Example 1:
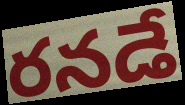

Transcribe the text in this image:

రనడే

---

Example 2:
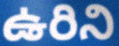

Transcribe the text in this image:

ఉరిని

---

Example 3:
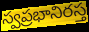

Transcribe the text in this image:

స్వప్రభానిరస్త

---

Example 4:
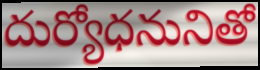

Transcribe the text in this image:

దుర్యోధనునితో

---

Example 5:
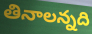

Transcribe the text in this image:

తినాలన్నది